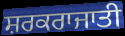
ਸ਼ਰਕਰਾਜਾਤੀ